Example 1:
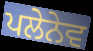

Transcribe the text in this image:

ਪਲੇਨੇਵ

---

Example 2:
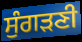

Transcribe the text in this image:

ਸੁੰਗੜਣੀ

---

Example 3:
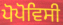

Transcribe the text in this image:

ਪੋਪੋਵਿਸੀ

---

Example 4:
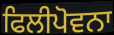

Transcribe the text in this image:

ਫਿਲੀਪੋਵਨਾ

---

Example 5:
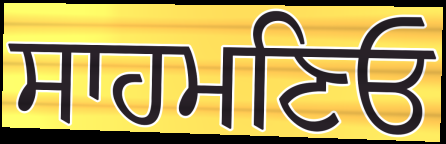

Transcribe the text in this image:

ਸਾਹਮਣਿਓ